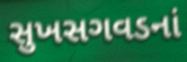
સુખસગવડનાં